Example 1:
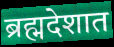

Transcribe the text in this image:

ब्रह्मदेशात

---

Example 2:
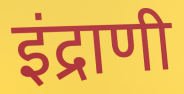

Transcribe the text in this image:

इंद्राणी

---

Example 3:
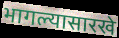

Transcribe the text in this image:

भागल्यासारखे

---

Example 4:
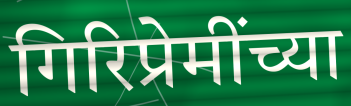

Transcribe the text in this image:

गिरिप्रेमींच्या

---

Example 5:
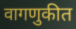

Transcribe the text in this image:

वागणुकीत